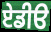
ਏਡੀੳ